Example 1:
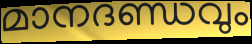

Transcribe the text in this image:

മാനദണ്ഡവും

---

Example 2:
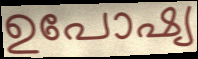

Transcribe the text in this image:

ഉപോഷ്യ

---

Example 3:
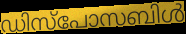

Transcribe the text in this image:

ഡിസ്പോസബിൾ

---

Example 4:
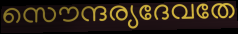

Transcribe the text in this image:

സൌന്ദര്യദേവതേ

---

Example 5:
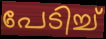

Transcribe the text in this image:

പേടിച്ച്